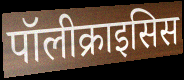
पॉलीक्राइसिस